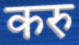
करु